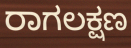
ರಾಗಲಕ್ಷಣ